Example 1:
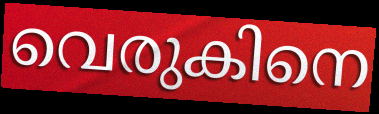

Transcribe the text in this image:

വെരുകിനെ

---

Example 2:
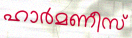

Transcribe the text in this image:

ഹാർമണീസ്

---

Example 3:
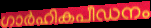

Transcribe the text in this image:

ഗാർഹികപീഡനം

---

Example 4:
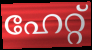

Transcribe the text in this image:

ഹേറ്റ്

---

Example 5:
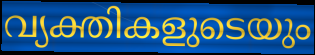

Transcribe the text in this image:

വ്യക്തികളുടെയും